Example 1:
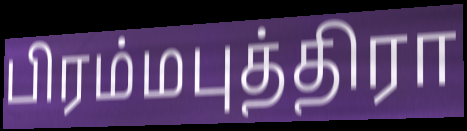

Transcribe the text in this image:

பிரம்மபுத்திரா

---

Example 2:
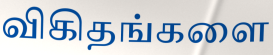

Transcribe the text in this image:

விகிதங்களை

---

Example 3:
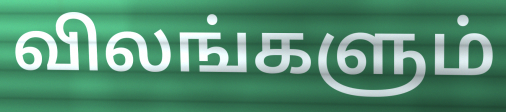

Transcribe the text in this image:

விலங்களும்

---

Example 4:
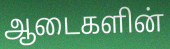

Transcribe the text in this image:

ஆடைகளின்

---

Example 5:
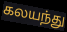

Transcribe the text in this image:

கலயந்து